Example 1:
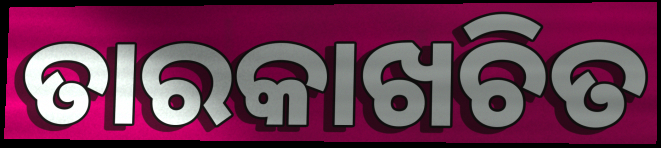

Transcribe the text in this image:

ତାରକାଖଚିତ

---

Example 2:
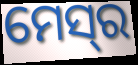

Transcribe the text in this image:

ମେସ୍‌ର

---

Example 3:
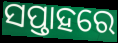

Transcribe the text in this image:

ସପ୍ତାହରେ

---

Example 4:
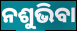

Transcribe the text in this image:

ନଶୁଭିବା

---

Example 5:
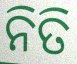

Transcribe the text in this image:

ନିତି